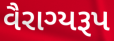
વૈરાગ્યરૂપ